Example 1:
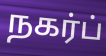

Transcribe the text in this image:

நகர்ப்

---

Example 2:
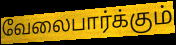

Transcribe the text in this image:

வேலைபார்க்கும்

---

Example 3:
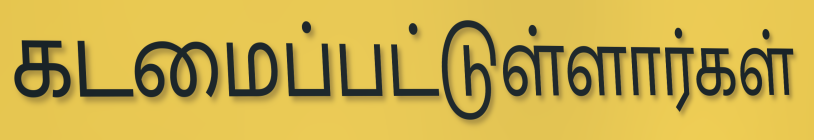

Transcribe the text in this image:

கடமைப்பட்டுள்ளார்கள்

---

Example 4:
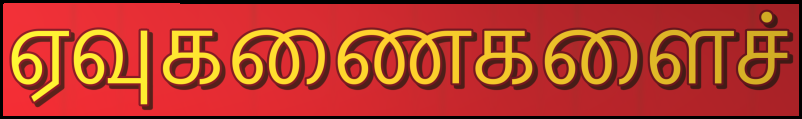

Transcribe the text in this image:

ஏவுகணைகளைச்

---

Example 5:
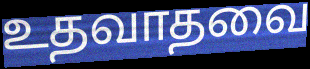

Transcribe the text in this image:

உதவாதவை